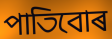
পাতিবোৰ